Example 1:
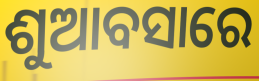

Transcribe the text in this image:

ଶୁଆବସାରେ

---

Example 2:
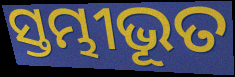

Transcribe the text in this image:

ସ୍ତମ୍ଭୀଭୂତ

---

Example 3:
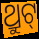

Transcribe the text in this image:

ଥ୍ରୁଟ୍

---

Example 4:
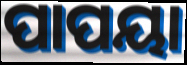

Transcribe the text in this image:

ପାପୟା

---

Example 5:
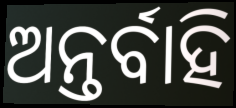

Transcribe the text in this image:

ଅନ୍ତର୍ବାହି